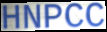
HNPCC